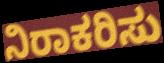
ನಿರಾಕರಿಸು